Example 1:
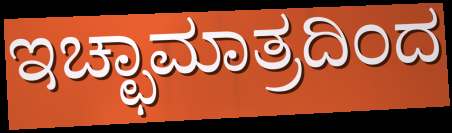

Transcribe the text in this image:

ಇಚ್ಛಾಮಾತ್ರದಿಂದ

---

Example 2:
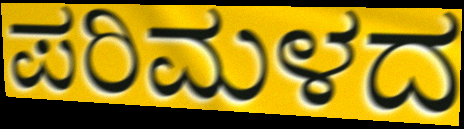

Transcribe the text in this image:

ಪರಿಮಳದ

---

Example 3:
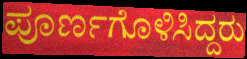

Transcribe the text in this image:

ಪೂರ್ಣಗೊಳಿಸಿದ್ದರು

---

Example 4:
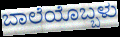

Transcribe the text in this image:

ಬಾಲೆಯೊಬ್ಬಳು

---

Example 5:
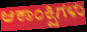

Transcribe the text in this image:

ಆಕಾಂಕ್ಷಿಗಳು